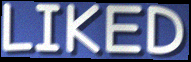
LIKED